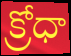
క్రోధా